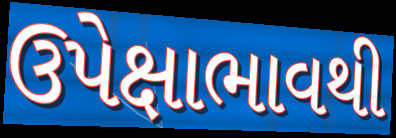
ઉપેક્ષાભાવથી